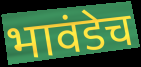
भावंडेच